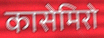
कासेमिरो